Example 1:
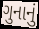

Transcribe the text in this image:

ગુનાનું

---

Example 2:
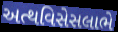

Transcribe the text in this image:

અત્થવિસેસલાભે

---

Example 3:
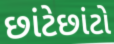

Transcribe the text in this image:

છાંટેછાંટો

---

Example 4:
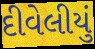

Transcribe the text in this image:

દીવેલીયું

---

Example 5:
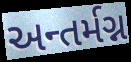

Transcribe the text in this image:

અન્તર્મગ્ન